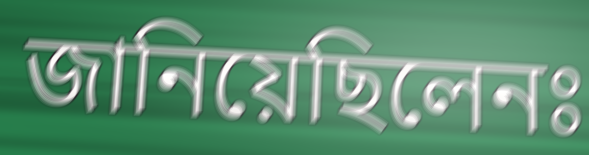
জানিয়েছিলেনঃ